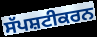
ਸੱਪਸ਼ਟੀਕਰਨ